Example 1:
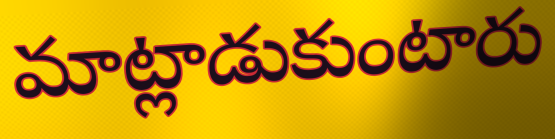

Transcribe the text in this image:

మాట్లాడుకుంటారు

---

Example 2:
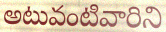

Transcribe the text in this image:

అటువంటివారిని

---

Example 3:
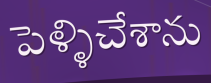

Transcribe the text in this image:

పెళ్ళిచేశాను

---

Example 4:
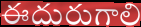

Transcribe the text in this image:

ఈదురుగాలి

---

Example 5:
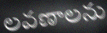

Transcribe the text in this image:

లవణాలను